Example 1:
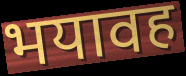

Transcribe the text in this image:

भयावह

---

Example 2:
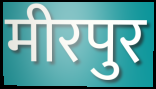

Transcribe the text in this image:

मीरपुर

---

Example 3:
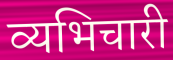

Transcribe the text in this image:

व्यभिचारी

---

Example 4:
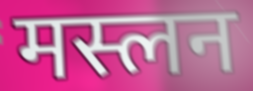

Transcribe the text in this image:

मस्लन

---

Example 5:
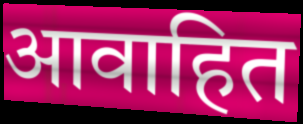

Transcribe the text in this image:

आवाहित